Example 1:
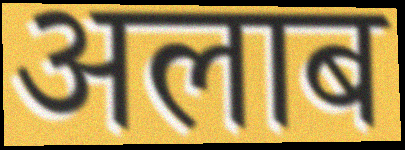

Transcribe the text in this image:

अलाब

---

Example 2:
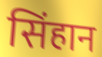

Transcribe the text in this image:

सिंहान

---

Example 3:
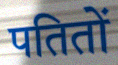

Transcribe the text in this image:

पतितों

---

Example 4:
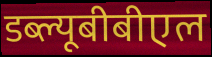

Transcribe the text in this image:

डब्ल्यूबीबीएल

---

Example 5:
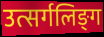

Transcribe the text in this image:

उत्सर्गलिङ्ग